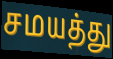
சமயத்து